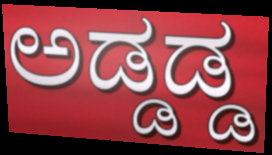
ಅಡ್ಡಡ್ಡ